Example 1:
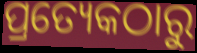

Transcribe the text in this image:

ପ୍ରତ୍ୟେକଠାରୁ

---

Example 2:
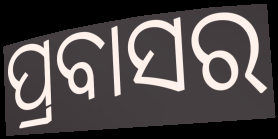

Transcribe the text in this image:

ପ୍ରବାସର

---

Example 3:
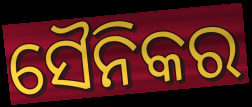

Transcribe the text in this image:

ସୈନିକର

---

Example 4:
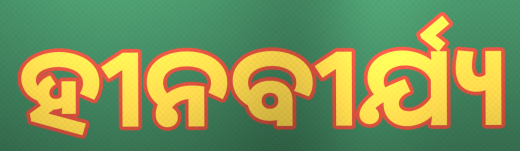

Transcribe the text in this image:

ହୀନବୀର୍ଯ୍ୟ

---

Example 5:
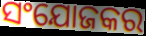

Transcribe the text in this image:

ସଂଯୋଜକର